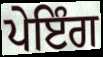
ਪੇਇੰਗ